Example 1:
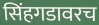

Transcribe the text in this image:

सिंहगडावरच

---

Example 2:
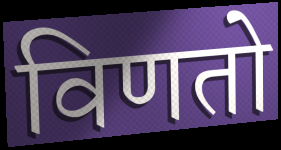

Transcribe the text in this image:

विणतो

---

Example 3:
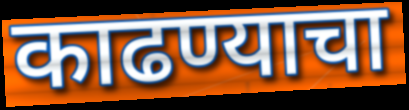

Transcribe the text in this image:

काढण्याचा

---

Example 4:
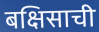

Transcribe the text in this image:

बक्षिसाची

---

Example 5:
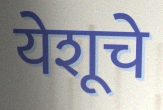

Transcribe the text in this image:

येशूचे